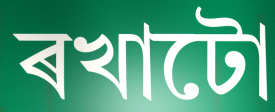
ৰখাটো